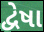
દ્વેષા